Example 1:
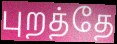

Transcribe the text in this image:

புறத்தே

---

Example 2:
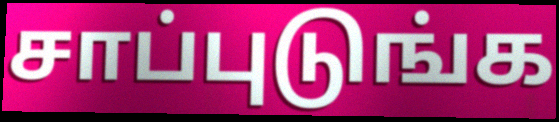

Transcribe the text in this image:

சாப்புடுங்க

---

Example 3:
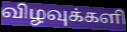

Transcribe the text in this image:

விழவுக்களி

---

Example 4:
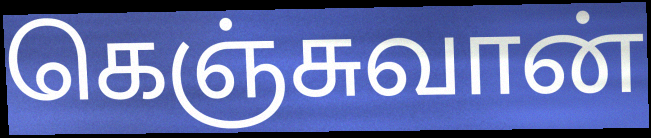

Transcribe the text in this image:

கெஞ்சுவான்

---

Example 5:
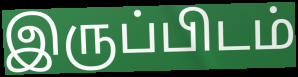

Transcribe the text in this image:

இருப்பிடம்